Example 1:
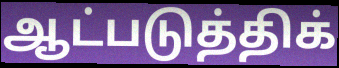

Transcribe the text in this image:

ஆட்படுத்திக்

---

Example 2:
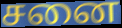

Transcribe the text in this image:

சனை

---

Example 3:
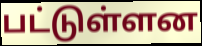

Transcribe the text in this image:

பட்டுள்ளன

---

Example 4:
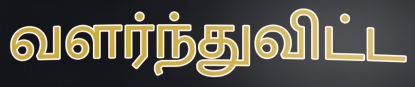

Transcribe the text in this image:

வளர்ந்துவிட்ட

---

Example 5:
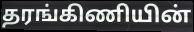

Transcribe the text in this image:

தரங்கிணியின்